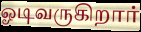
ஓடிவருகிறார்